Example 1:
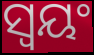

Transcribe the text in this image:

ସ୍ଵୟଂ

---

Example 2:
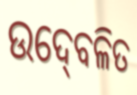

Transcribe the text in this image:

ଉଦ୍‍ବେଳିତ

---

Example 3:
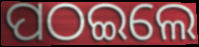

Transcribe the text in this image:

ପଠଇଲେ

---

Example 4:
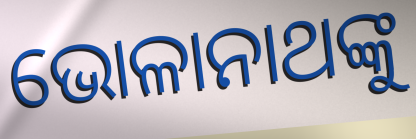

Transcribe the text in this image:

ଭୋଳାନାଥଙ୍କୁ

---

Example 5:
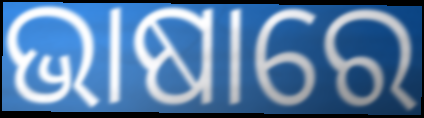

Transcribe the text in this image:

ଭାଷାରେ